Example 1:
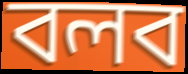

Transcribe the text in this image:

বলব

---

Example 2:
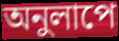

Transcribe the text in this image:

অনুলাপে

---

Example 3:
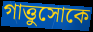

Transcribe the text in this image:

গাত্তুসোকে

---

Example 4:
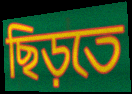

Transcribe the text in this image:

ছিড়তে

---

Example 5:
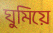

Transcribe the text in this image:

ঘুমিয়ে